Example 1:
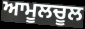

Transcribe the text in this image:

ਆਮੂਲਚੂਲ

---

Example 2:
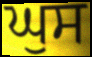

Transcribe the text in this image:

ਘੁਸ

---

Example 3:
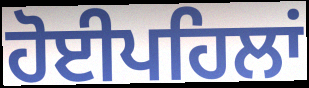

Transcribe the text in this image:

ਹੋਈਪਹਿਲਾਂ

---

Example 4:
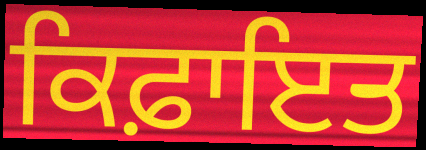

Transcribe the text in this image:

ਕਿਫ਼ਾਇਤ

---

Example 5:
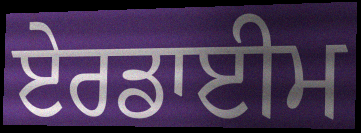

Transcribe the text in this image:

ਏਰਡਾਈਮ